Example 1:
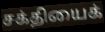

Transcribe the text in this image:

சக்தியைக்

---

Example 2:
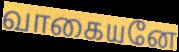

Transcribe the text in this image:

வாகையனே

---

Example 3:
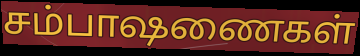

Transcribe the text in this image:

சம்பாஷணைகள்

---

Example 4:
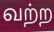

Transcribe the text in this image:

வற்ற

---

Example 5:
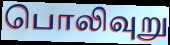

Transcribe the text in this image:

பொலிவுறு